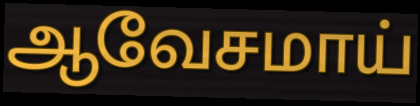
ஆவேசமாய்